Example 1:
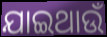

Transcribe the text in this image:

ଯାଇଥାଉଁ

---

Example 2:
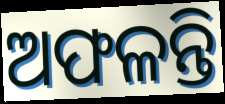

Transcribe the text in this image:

ଅଫଳନ୍ତି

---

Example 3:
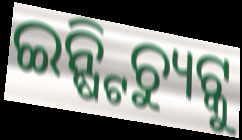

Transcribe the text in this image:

ଇନ୍ଷ୍ଟିଚ୍ୟୁଟ୍କୁ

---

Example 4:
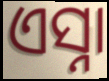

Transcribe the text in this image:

ଏସ୍ନା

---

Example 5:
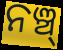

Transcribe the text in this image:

ନଞ୍ଚ୍